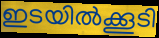
ഇടയിൽക്കൂടി